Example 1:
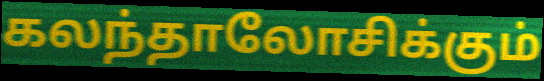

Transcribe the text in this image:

கலந்தாலோசிக்கும்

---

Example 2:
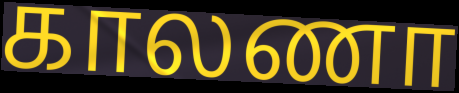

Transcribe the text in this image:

காலணா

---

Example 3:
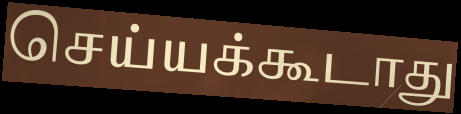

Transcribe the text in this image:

செய்யக்கூடாது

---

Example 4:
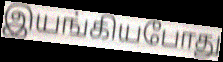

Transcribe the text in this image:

இயங்கியபோது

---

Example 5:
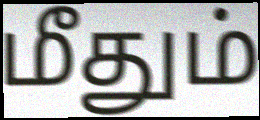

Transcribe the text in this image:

மீதும்